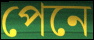
পেনে